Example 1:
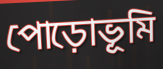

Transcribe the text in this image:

পোড়োভূমি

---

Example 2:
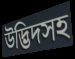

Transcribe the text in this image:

উদ্ভিদসহ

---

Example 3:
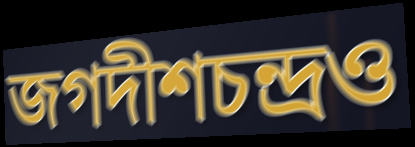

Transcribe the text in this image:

জগদীশচন্দ্রও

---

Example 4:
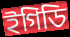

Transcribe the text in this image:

ইগিডি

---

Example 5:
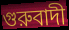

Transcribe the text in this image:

গুরুবাদী